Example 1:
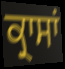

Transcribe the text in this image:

ਕ੍ਰਾਸਾਂ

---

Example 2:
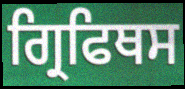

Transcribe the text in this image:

ਗ੍ਰਿਫਿਥਸ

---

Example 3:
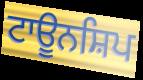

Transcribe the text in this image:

ਟਾਊਨਸ਼ਿਪ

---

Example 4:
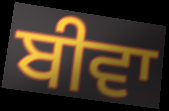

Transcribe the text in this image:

ਬੀਵਾ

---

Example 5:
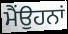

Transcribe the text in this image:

ਮੈਂਉਹਨਾਂ